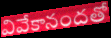
వివేకానందతో